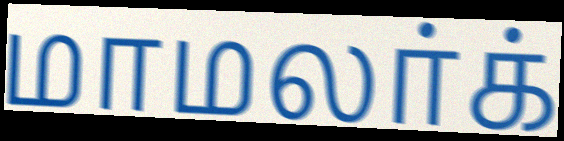
மாமலர்க்